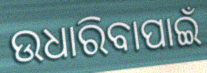
ଉଧାରିବାପାଇଁ